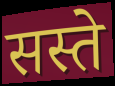
सस्ते